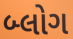
બ્લોગ